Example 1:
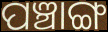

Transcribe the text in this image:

ପଞ୍ଚାଙ୍ଗ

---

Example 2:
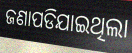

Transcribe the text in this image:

ଜଣାପଡିଯାଇଥିଲା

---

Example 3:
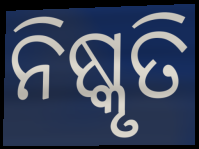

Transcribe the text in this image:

ନିଷ୍କୃତି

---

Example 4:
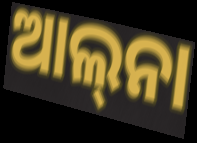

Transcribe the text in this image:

ଆଲ୍‍ନା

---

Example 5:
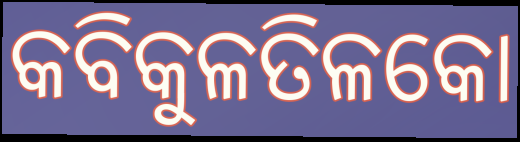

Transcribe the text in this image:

କବିକୁଳତିଳକୋ